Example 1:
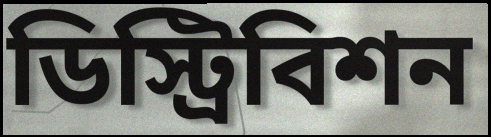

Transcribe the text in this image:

ডিস্ট্রিবিশন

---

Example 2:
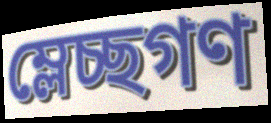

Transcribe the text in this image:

ম্লেচ্ছগণ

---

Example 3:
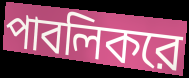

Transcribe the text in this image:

পাবলিকরে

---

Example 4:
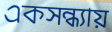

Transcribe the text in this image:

একসন্ধ্যায়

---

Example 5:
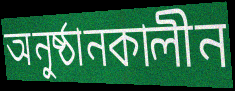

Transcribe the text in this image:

অনুষ্ঠানকালীন